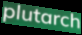
plutarch